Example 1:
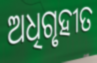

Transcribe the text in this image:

ଅଧିଗୃହୀତ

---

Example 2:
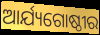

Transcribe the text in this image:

ଆର୍ଯ୍ୟଗୋଷ୍ଠୀର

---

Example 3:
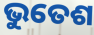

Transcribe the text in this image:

ଭୁତେଶ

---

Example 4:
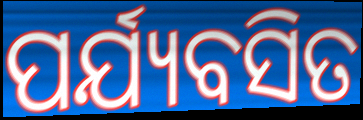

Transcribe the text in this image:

ପର୍ଯ୍ୟବସିତ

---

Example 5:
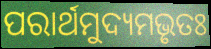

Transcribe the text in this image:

ପରାର୍ଥମୁଦ୍ୟମଭୃତଃ